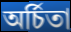
অৰ্চিতা